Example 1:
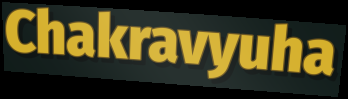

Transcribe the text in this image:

Chakravyuha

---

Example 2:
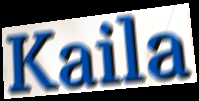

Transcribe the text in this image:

Kaila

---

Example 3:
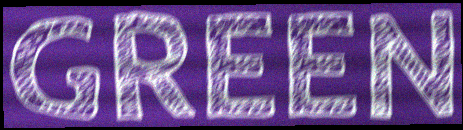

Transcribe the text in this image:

GREEN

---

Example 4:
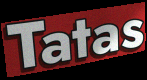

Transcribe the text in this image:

Tatas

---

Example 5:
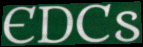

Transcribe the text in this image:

EDCs